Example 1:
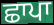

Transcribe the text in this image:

ਛਾਪਾ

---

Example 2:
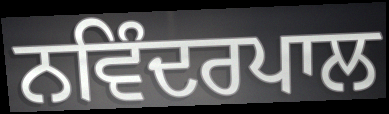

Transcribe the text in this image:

ਨਵਿੰਦਰਪਾਲ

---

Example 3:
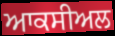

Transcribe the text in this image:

ਆਕਸੀਅਲ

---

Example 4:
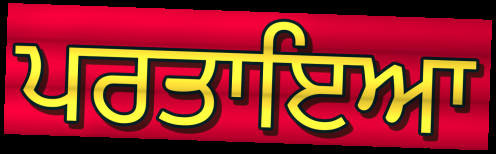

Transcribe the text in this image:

ਪਰਤਾਇਆ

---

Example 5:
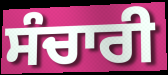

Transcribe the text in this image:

ਸੰਚਾਰੀ